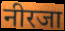
नीरजा